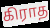
கிராத